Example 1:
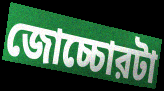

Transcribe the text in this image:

জোচ্চোরটা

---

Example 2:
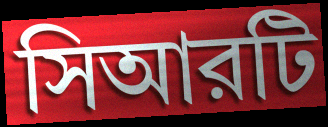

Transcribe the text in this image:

সিআরটি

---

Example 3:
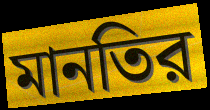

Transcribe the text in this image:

মানতির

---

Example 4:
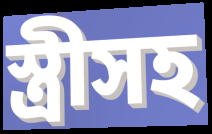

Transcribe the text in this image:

স্ত্রীসহ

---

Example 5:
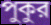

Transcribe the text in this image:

পুকুর